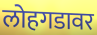
लोहगडावर